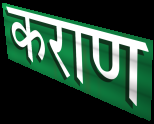
कराण